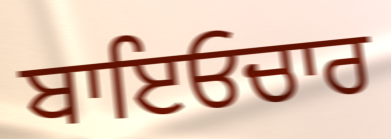
ਬਾਇਓਚਾਰ